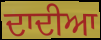
ਦਾਦੀਆ